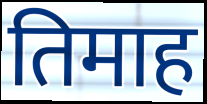
तिमाह